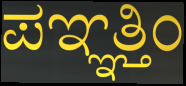
ಪಞ್ಞತ್ತಿಂ